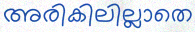
അരികിലില്ലാതെ